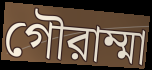
গৌরাম্মা